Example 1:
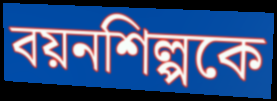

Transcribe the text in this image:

বয়নশিল্পকে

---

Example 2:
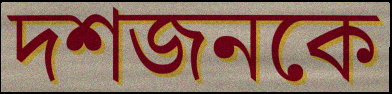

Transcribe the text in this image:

দশজনকে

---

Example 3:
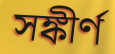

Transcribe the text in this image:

সঙ্কীর্ণ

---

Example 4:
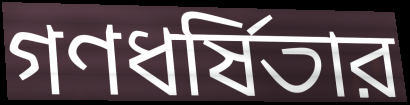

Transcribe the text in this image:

গণধর্ষিতার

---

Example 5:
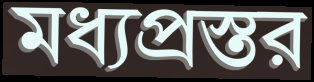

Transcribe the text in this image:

মধ্যপ্রস্তর